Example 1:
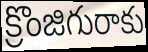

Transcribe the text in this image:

క్రొంజిగురాకు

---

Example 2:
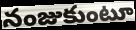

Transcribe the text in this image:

నంజుకుంటూ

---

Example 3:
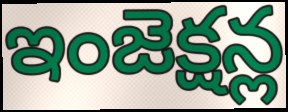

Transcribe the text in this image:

ఇంజెక్షన్ల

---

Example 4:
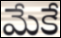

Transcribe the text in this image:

మేకే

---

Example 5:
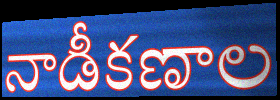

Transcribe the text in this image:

నాడీకణాల